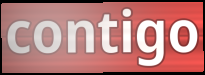
contigo